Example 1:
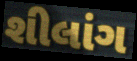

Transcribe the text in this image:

શીલાંગ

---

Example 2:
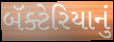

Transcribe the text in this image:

બૅક્ટેરિયાનું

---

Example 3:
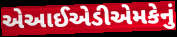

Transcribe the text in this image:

એઆઈએડીએમકેનું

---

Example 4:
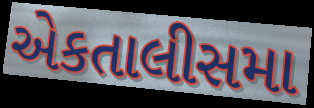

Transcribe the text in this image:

એકતાલીસમા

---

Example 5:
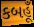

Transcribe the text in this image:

કબહૂઁ